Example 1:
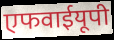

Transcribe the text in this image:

एफवाईयूपी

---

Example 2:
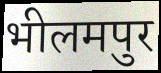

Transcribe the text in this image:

भीलमपुर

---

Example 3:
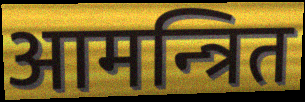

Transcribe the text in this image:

आमन्त्रित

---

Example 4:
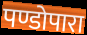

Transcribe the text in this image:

पण्डोपारा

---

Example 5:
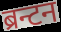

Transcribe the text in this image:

ब्रन्टन